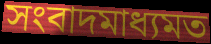
সংবাদমাধ্যমত